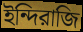
ইন্দিরাজি